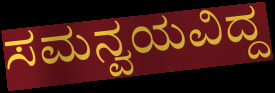
ಸಮನ್ವಯವಿದ್ದ